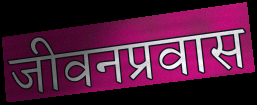
जीवनप्रवास